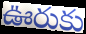
ఊరుకు